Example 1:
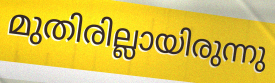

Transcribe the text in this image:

മുതിരില്ലായിരുന്നു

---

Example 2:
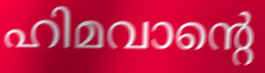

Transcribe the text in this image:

ഹിമവാന്റെ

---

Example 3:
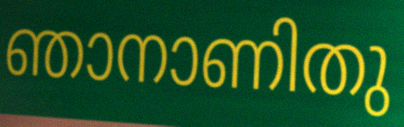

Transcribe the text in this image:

ഞാനാണിതു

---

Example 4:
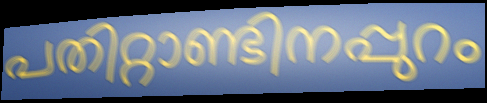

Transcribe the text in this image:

പതിറ്റാണ്ടിനപ്പുറം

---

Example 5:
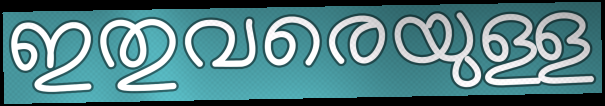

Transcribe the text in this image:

ഇതുവരെയുള്ള